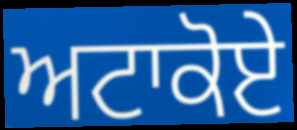
ਅਟਾਕੋਏ